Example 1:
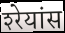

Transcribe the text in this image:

श्रेयांस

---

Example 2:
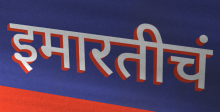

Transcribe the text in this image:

इमारतीचं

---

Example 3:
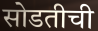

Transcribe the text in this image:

सोडतीची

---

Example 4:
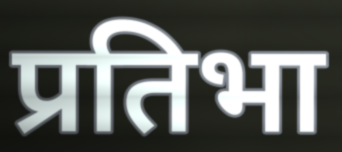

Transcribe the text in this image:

प्रतिभा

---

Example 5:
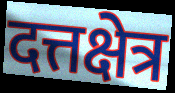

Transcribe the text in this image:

दत्तक्षेत्र